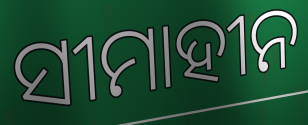
ସୀମାହୀନ